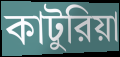
কাটুরিয়া